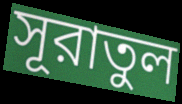
সূরাতুল